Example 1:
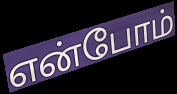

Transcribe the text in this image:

என்போம்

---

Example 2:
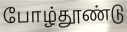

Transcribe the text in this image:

போழ்தூண்டு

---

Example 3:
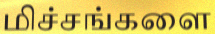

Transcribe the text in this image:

மிச்சங்களை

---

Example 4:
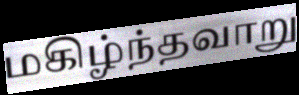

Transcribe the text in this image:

மகிழ்ந்தவாறு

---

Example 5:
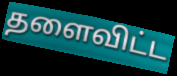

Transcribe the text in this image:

தளைவிட்ட